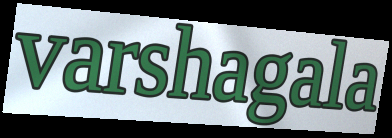
varshagala